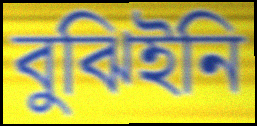
বুঝিইনি